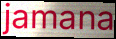
jamana